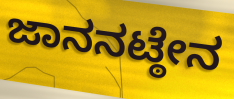
ಜಾನನಟ್ಠೇನ